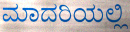
ಮಾದರಿಯಲ್ಲಿ